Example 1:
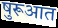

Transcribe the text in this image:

षुरूआत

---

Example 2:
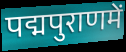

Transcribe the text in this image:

पद्मपुराणमें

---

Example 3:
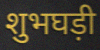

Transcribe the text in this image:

शुभघड़ी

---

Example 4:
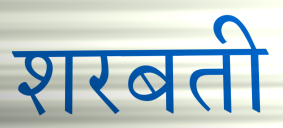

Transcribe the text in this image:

शरबती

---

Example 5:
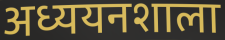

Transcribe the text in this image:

अध्ययनशाला